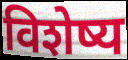
विशेष्य